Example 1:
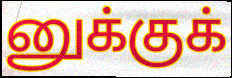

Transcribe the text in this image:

னுக்குக்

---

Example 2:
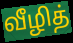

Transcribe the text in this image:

வீழித்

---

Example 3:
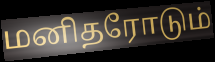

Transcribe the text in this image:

மனிதரோடும்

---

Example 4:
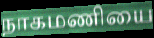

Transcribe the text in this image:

நாகமணியை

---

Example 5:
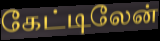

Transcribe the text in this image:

கேட்டிலேன்